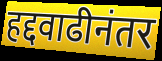
हद्दवाढीनंतर